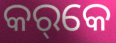
କର୍‌କେ